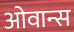
ओवान्स